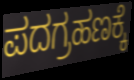
ಪದಗ್ರಹಣಕ್ಕೆ